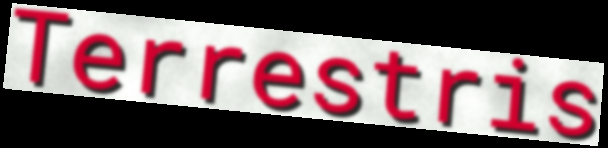
Terrestris